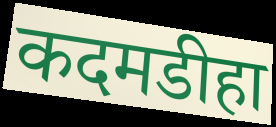
कदमडीहा